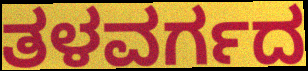
ತಳವರ್ಗದ